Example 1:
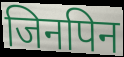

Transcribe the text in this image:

जिनपिन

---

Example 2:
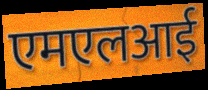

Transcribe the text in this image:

एमएलआई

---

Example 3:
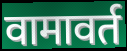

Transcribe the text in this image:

वामावर्त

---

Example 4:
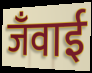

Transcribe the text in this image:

जँवाई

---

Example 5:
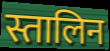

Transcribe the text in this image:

स्तालिन